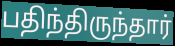
பதிந்திருந்தார்